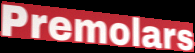
Premolars